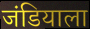
जंडियाला